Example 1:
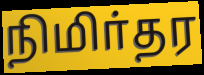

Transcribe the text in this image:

நிமிர்தர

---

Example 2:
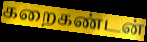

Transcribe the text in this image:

கறைகண்டன்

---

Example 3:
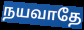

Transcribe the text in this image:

நயவாதே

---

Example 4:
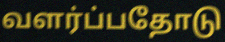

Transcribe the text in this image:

வளர்ப்பதோடு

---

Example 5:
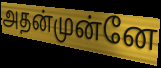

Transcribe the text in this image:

அதன்முன்னே